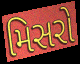
મિસરો